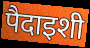
पैदाइशी